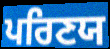
ਪਰਿਣਯ